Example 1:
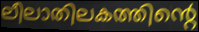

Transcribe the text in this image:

ലീലാതിലകത്തിന്റെ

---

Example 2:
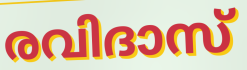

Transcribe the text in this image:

രവിദാസ്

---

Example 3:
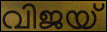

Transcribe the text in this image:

വിജയ്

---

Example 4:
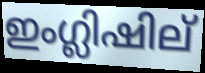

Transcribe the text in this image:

ഇംഗ്ലിഷില്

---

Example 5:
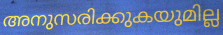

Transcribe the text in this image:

അനുസരിക്കുകയുമില്ല